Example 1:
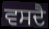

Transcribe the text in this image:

ਵਸਦੈ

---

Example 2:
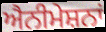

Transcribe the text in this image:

ਐਨੀਮੇਸ਼ਨਾਂ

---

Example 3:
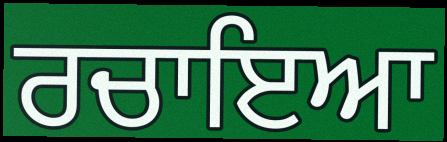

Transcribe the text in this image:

ਰਚਾਇਆ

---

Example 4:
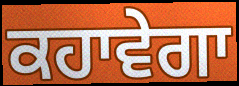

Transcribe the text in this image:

ਕਹਾਵੇਗਾ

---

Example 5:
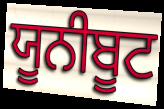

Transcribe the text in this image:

ਯੂਨੀਬੂਟ